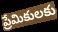
ప్రేమికులకు